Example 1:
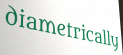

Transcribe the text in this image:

diametrically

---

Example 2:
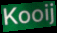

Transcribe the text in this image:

Kooij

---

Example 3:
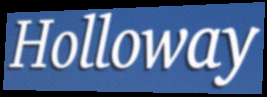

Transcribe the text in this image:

Holloway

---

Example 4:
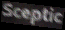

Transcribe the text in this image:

Sceptic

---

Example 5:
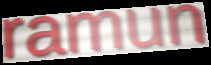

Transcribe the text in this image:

ramun